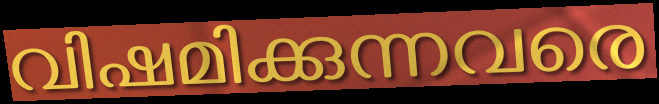
വിഷമിക്കുന്നവരെ